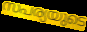
സപര്യയുടെ